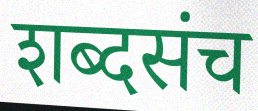
शब्दसंच